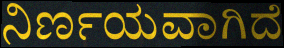
ನಿರ್ಣಯವಾಗಿದೆ